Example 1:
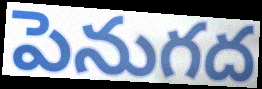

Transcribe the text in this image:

పెనుగద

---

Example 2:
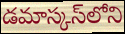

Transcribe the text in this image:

డమాస్కస్‌లోని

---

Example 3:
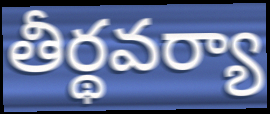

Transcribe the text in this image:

తీర్థవర్యా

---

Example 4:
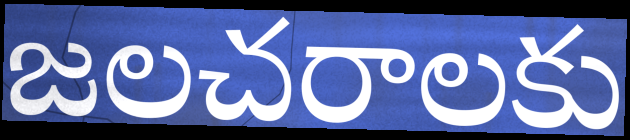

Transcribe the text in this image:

జలచరాలకు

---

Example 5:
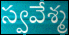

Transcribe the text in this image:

స్వవేశ్మ